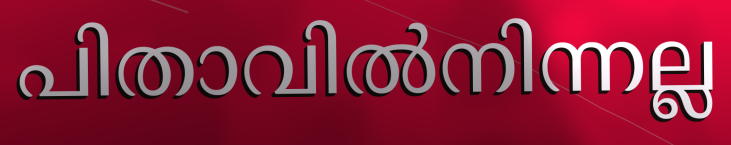
പിതാവിൽനിന്നല്ല